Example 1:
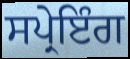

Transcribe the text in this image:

ਸਪ੍ਰੇਇੰਗ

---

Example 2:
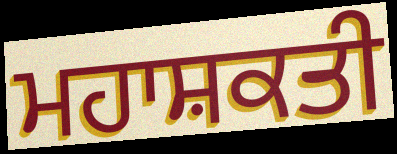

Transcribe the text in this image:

ਮਹਾਸ਼ਕਤੀ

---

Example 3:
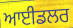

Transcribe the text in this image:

ਆਈਡਲਰ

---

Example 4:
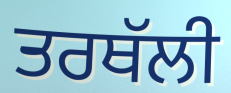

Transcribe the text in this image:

ਤਰਥੱਲੀ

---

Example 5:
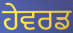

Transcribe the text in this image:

ਹੇਵਰਡ